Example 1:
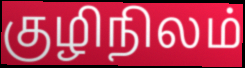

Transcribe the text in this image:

குழிநிலம்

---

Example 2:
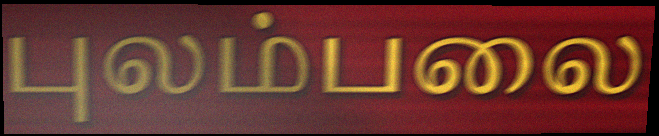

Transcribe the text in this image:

புலம்பலை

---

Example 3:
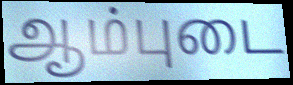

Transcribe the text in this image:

ஆம்புடை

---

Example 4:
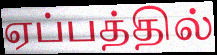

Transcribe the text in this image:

ஏப்பத்தில்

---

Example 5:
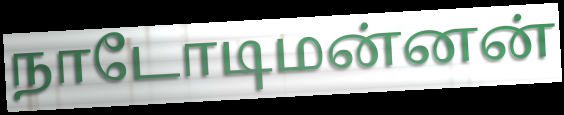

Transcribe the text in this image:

நாடோடிமன்னன்